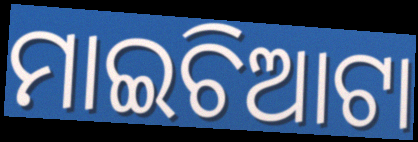
ମାଇଚିଆଟା